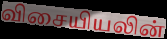
விசையியலின்